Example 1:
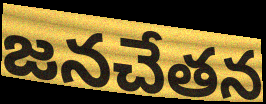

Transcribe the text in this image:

జనచేతన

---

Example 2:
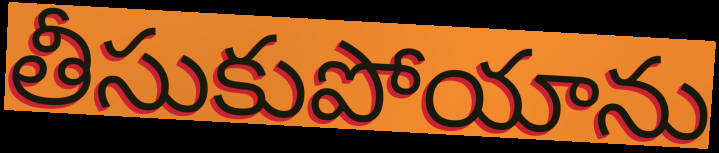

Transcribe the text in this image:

తీసుకుపోయాను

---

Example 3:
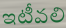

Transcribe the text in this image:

ఇటీవలి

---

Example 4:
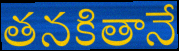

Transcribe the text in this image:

తనకితానే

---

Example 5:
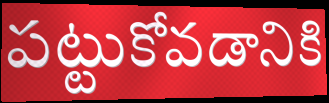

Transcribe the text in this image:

పట్టుకోవడానికి